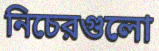
নিচেরগুলো